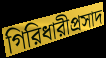
গিরিধারীপ্রসাদ